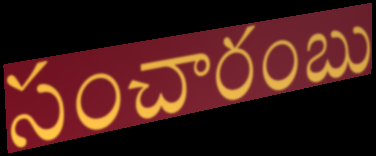
సంచారంబు